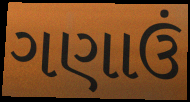
ગણાઉં